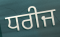
ਧਰੀਜ